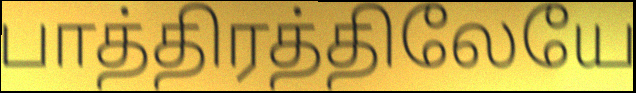
பாத்திரத்திலேயே